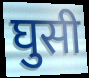
घुसी